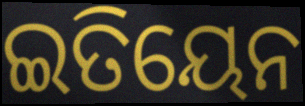
ଇତିୟେନ